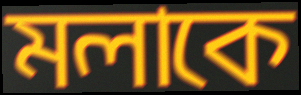
মলাকে